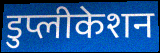
डुप्लीकेशन